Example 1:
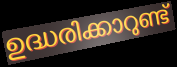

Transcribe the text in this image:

ഉദ്ധരിക്കാറുണ്ട്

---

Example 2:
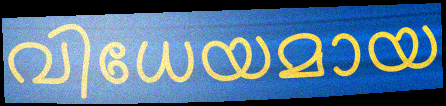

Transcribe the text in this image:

വിധേയമായ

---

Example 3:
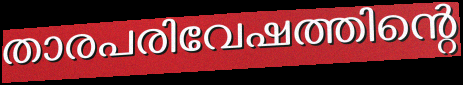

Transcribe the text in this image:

താരപരിവേഷത്തിന്റെ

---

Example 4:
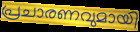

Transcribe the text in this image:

പ്രചാരണവുമായി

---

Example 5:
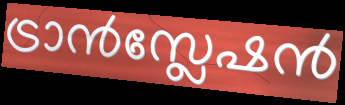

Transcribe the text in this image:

ട്രാൻസ്ലേഷൻ